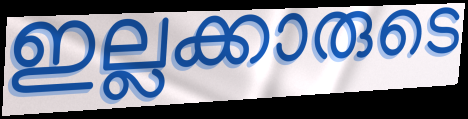
ഇല്ലക്കാരുടെ